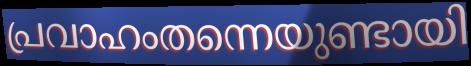
പ്രവാഹംതന്നെയുണ്ടായി